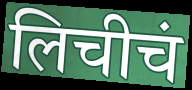
लिचीचं